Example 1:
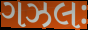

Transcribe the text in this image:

ગઝલઃ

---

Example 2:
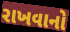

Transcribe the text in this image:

રાખવાનો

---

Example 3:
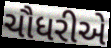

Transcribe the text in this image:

ચૌધરીએ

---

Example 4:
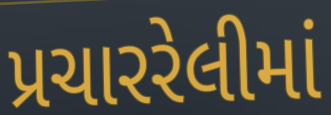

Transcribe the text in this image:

પ્રચારરેલીમાં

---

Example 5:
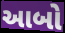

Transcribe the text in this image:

આબો